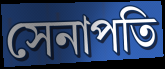
সেনাপতি